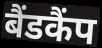
बैंडकैंप